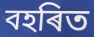
বহৰিত